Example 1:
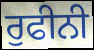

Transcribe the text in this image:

ਰੁਫੀਨੀ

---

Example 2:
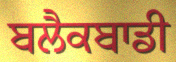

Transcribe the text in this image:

ਬਲੈਕਬਾਡੀ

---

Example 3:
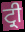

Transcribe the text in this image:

ਟ੍ਰੀ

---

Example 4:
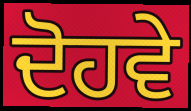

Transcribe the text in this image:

ਦੋਹਵੇ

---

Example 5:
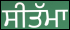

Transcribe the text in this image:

ਸੀਤੱਮਾ